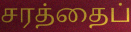
சரத்தைப்